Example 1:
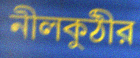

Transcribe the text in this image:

নীলকুঠীর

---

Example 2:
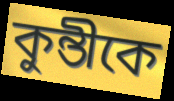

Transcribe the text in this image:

কুন্তীকে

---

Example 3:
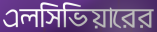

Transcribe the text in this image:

এলসিভিয়ারের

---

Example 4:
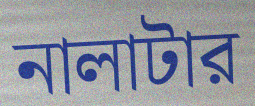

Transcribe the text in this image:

নালাটার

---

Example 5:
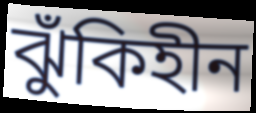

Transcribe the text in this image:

ঝুঁকিহীন